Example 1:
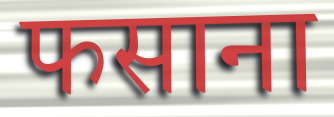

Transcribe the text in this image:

फसाना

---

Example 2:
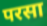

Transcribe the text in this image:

परसा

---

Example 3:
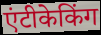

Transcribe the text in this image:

एंटीकेकिंग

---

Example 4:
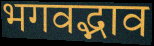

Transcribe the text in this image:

भगवद्भाव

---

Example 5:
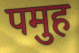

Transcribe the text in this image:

पमुह